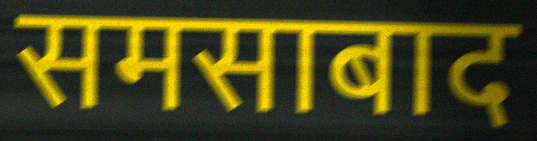
समसाबाद